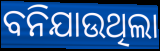
ବନିଯାଉଥିଲା